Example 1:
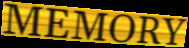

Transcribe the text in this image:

MEMORY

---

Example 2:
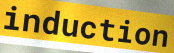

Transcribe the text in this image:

induction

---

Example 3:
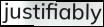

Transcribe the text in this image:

justifiably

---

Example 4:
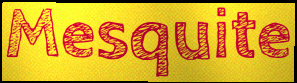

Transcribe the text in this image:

Mesquite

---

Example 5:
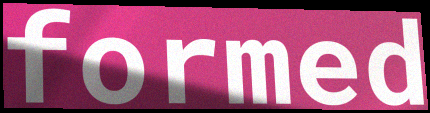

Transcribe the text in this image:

formed